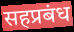
सहप्रबंध